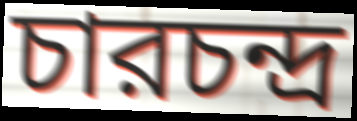
চারচন্দ্র